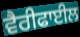
ਵੈਰੀਫਾਈਲ